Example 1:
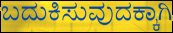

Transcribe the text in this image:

ಬದುಕಿಸುವುದಕ್ಕಾಗಿ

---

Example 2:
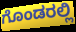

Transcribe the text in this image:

ಗೊಂಡರಲ್ಲಿ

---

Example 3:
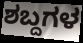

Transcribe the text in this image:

ಶಬ್ದಗಳ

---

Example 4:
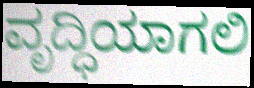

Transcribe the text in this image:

ವೃದ್ಧಿಯಾಗಲಿ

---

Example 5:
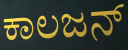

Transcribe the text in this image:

ಕಾಲಜನ್